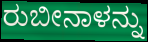
ರುಬೀನಾಳನ್ನು